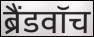
ब्रैंडवॉच